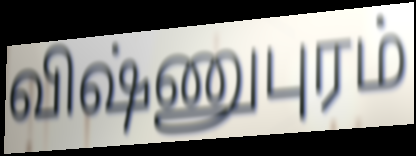
விஷ்ணுபுரம்